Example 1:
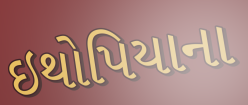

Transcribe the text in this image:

ઇથોપિયાના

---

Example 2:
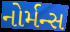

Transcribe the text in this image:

નોર્મન્સ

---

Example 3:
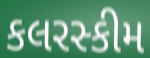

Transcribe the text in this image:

કલરસ્કીમ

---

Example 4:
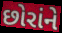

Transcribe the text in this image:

છોરાંને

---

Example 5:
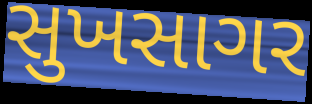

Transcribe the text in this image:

સુખસાગર